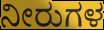
ನೀರುಗಳ